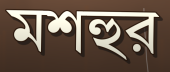
মশহুর